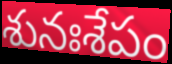
శునఃశేపం